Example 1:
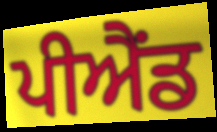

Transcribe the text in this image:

ਪੀਐਂਡ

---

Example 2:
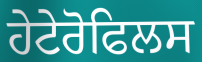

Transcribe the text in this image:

ਹੇਟੇਰੋਫਿਲਸ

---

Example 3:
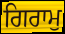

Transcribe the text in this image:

ਗਿਰਾਮੁ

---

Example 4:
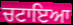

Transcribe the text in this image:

ਚਟਾਇਆ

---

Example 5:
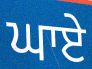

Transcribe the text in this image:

ਘਾਏ